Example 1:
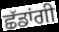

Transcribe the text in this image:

ਛੱਡਾਂਗੀ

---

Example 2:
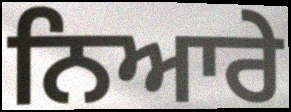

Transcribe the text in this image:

ਨਿਆਰੇ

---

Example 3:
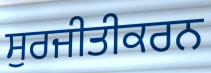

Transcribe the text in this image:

ਸੁਰਜੀਤੀਕਰਨ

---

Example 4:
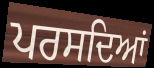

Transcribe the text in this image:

ਪਰਸਦਿਆਂ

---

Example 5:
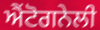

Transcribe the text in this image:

ਐਂਟੋਗਨੇਲੀ